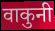
वाकुनी